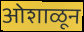
ओशाळून